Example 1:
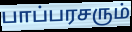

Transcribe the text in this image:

பாப்பரசரும்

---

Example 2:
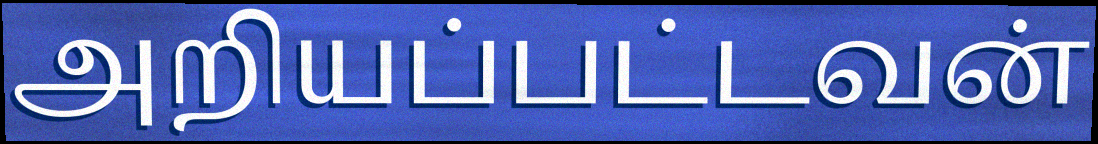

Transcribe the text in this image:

அறியப்பட்டவன்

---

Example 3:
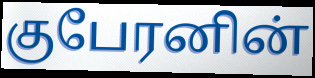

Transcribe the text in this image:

குபேரனின்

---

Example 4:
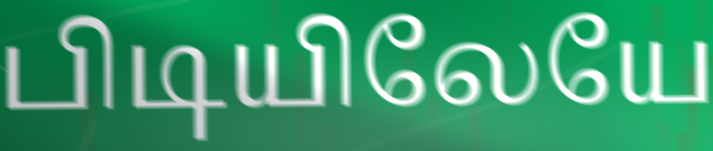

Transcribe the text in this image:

பிடியிலேயே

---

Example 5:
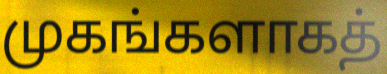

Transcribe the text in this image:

முகங்களாகத்